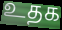
உதக